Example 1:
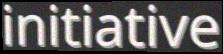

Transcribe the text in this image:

initiative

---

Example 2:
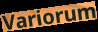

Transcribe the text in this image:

Variorum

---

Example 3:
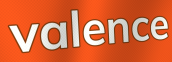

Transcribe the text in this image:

valence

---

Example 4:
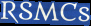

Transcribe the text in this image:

RSMCs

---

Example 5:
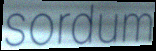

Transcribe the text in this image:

sordum